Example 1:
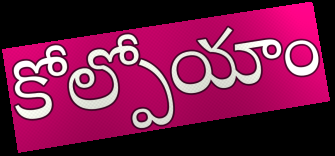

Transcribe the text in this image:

కోల్పోయాం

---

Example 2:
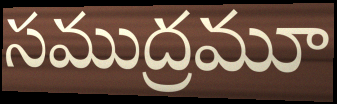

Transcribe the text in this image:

సముద్రమూ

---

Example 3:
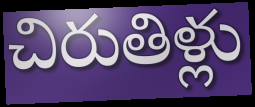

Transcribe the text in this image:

చిరుతిళ్లు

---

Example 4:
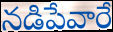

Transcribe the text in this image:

నడిపేవారే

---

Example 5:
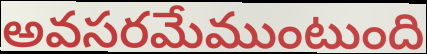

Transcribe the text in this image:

అవసరమేముంటుంది